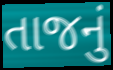
તાજનું